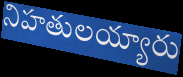
నిహతులయ్యారు